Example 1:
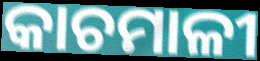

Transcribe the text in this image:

କାଚମାଳୀ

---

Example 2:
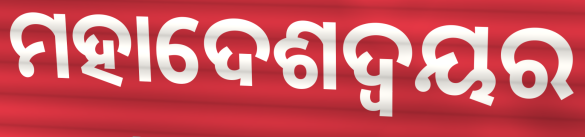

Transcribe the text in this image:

ମହାଦେଶଦ୍ଵୟର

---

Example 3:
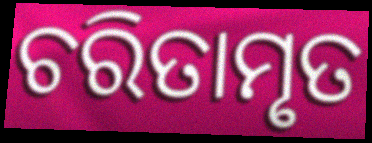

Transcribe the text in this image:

ଚରିତାମୃତ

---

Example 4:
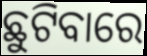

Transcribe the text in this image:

ଛୁଟିବାରେ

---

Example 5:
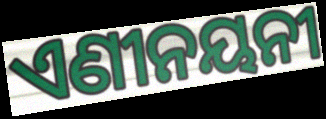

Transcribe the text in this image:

ଏଣୀନୟନୀ